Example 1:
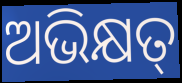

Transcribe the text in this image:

ଅଭିକ୍ଷତ୍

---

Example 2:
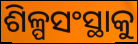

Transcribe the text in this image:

ଶିଳ୍ପସଂସ୍ଥାକୁ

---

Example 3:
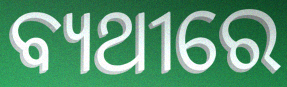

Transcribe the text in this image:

ବ୍ୟଥୀରେ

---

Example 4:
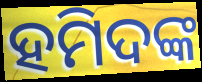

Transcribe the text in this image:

ହମିଦଙ୍କ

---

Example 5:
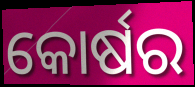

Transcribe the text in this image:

କୋର୍ଷର